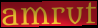
amrut